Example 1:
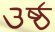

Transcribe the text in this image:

ওষ্ঠ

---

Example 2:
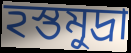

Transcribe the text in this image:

হস্তমুদ্রা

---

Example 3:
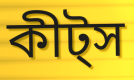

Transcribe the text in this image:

কীট্স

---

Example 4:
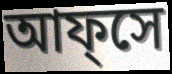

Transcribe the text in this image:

আফ্সে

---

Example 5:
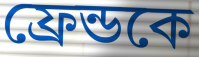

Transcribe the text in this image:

ফ্রেন্ডকে